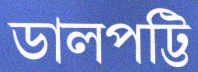
ডালপট্টি